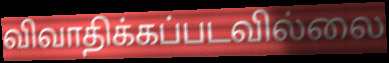
விவாதிக்கப்படவில்லை